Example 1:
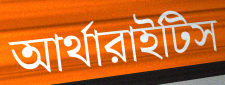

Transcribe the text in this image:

আর্থারাইটিস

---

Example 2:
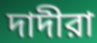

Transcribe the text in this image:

দাদীরা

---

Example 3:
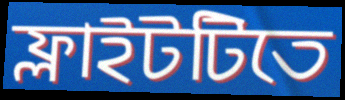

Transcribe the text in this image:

ফ্লাইটটিতে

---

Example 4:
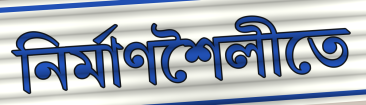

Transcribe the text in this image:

নির্মাণশৈলীতে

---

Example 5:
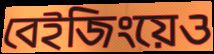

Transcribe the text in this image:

বেইজিংয়েও